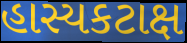
હાસ્યકટાક્ષ